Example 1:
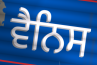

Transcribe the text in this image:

ਵੈਨਿਸ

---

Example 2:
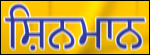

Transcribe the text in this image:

ਸ਼ਿਨਮਾਨ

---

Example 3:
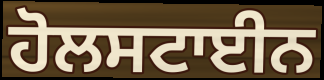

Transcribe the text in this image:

ਹੋਲਸਟਾਈਨ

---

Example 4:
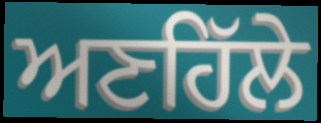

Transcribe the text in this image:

ਅਣਹਿੱਲੇ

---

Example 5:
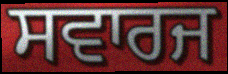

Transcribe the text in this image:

ਸਵਾਰਜ